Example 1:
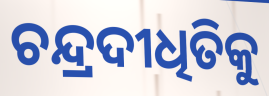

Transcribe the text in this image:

ଚନ୍ଦ୍ରଦୀଧିତିକୁ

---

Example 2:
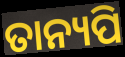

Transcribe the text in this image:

ତାନ୍ୟପି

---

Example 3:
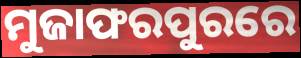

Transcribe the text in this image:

ମୁଜାଫରପୁରରେ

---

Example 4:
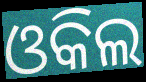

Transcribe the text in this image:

ଓକିଲ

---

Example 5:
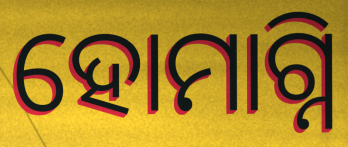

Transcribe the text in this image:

ହୋମାଗ୍ନି